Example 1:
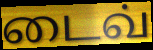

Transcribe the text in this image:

டைவ்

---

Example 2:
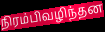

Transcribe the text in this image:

நிரம்பிவழிந்தன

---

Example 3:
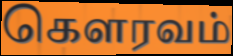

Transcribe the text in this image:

கெளரவம்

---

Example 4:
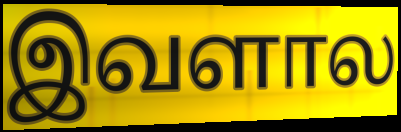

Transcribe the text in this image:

இவளால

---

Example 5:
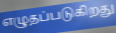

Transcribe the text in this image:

எழுதப்படுகிறது